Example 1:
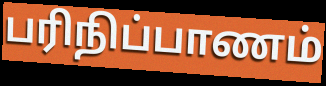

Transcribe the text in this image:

பரிநிப்பாணம்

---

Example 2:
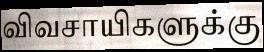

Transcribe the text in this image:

விவசாயிகளுக்கு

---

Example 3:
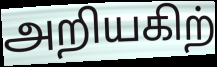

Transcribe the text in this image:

அறியகிற்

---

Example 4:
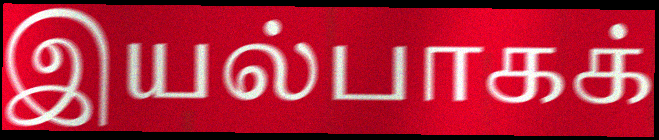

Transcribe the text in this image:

இயல்பாகக்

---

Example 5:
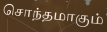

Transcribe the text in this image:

சொந்தமாகும்